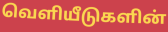
வெளியீடுகளின்